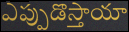
ఎప్పుడొస్తాయా